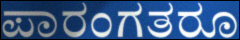
ಪಾರಂಗತರೂ